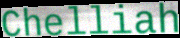
Chelliah